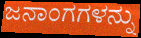
ಜನಾಂಗಗಳನ್ನು